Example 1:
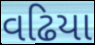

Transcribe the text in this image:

વઢિયા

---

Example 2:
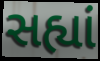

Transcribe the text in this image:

સહ્યાં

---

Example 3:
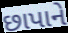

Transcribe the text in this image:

છાપાને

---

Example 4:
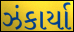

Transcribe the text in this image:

ઝંકાર્યા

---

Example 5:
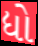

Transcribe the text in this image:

દ્યો